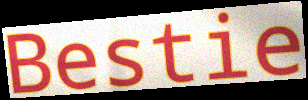
Bestie